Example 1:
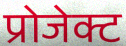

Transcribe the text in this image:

प्रोजेक्ट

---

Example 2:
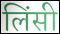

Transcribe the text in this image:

लिंसी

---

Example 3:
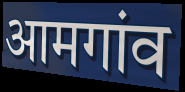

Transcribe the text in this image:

आमगांव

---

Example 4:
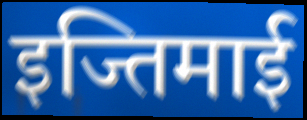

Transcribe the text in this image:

इज्तिमाई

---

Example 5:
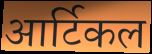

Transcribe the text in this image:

आर्टिकल